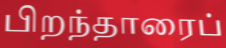
பிறந்தாரைப்